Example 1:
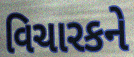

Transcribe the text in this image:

વિચારકને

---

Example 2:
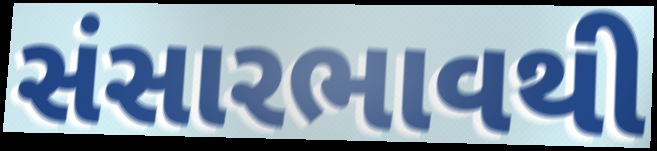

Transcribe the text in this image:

સંસારભાવથી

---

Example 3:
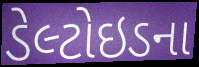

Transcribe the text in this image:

ડેલ્ટોઇડના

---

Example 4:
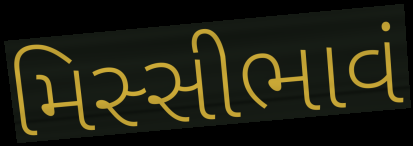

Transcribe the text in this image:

મિસ્સીભાવં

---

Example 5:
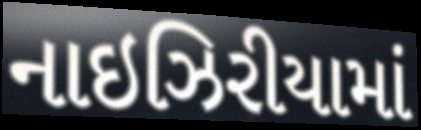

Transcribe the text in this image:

નાઇઝિરીયામાં